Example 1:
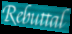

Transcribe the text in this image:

Rebuttal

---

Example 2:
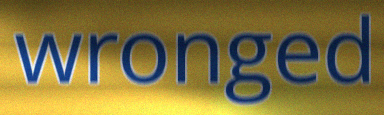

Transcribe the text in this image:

wronged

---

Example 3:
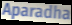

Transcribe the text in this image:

Aparadha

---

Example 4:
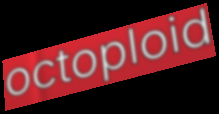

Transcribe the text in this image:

octoploid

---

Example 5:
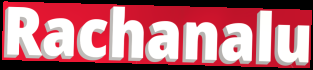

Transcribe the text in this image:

Rachanalu